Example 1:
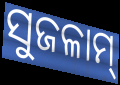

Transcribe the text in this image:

ସୁଜଳାମ୍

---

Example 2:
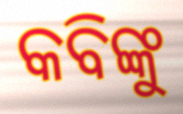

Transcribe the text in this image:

କବିଙ୍କୁ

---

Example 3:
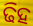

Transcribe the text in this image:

ଢିହ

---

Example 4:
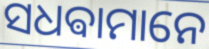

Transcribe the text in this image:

ସଧଵାମାନେ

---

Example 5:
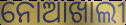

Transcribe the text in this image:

ନୋଆଖାଲୀ